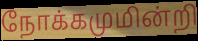
நோக்கமுமின்றி